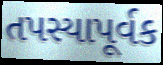
તપસ્યાપૂર્વક